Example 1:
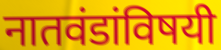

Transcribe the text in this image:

नातवंडांविषयी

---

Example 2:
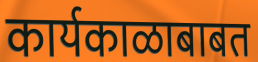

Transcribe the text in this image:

कार्यकाळाबाबत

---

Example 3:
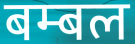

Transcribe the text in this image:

बम्बल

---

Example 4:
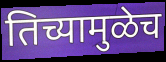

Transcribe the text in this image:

तिच्यामुळेच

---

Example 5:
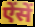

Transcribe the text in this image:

ऐंसें